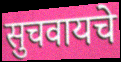
सुचवायचे